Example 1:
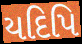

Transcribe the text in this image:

યદિપિ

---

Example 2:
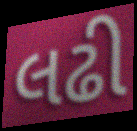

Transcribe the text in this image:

લઢી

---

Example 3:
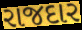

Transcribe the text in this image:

રાજદાર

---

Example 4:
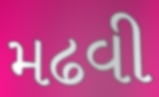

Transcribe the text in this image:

મઢવી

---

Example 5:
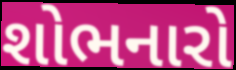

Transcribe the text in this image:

શોભનારો